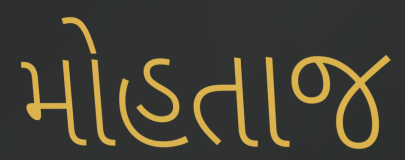
મોહતાજ